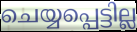
ചെയ്യപ്പെട്ടില്ല